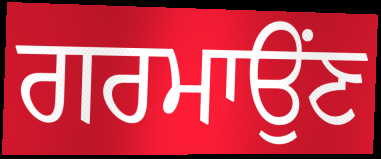
ਗਰਮਾਉਂਣ